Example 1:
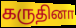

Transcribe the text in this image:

கருதினா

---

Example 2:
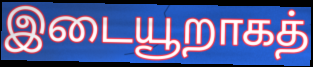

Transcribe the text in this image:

இடையூறாகத்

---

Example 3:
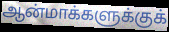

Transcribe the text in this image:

ஆன்மாக்களுக்குக்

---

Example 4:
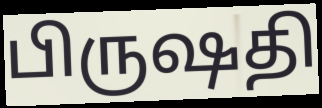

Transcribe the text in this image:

பிருஷதி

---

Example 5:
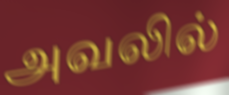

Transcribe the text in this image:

அவலில்